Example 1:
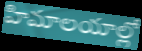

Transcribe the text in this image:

హిమాలయాల్లో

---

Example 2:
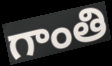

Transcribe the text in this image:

గాంతి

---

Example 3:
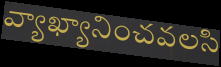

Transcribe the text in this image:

వ్యాఖ్యానించవలసి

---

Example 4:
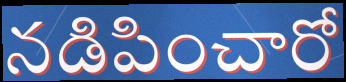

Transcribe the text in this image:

నడిపించారో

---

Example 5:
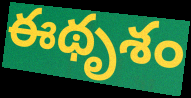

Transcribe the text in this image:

ఈథృశం